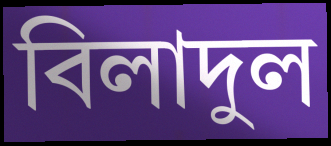
বিলাদুল